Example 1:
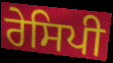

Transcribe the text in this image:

ਰੇਸਿਪੀ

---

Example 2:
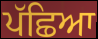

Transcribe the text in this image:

ਪੱਛਿਆ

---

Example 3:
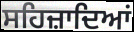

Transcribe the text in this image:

ਸਹਿਜ਼ਾਦਿਆਂ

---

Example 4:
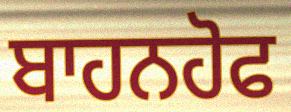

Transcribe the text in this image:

ਬਾਹਨਹੋਫ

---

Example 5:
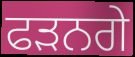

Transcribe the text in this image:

ਫੜਨਗੇ